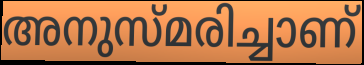
അനുസ്മരിച്ചാണ്